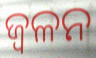
ଜ୍ୱଳନ